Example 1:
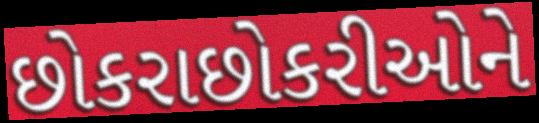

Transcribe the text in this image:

છોકરાછોકરીઓને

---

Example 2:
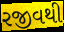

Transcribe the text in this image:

રજીવથી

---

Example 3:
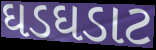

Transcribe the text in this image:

ઘડઘડાટ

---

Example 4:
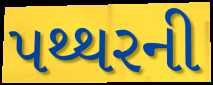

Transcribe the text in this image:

પથ્થરની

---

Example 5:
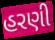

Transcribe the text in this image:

હરણી